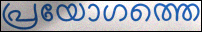
പ്രയോഗത്തെ